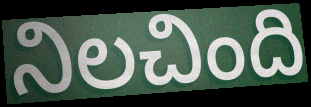
నిలచింది